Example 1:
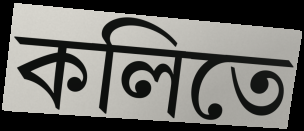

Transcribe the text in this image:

কলিতে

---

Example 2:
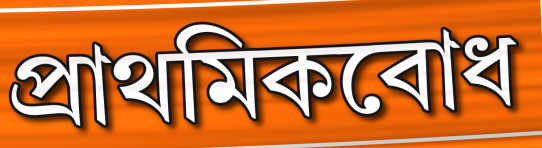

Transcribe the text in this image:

প্রাথমিকবোধ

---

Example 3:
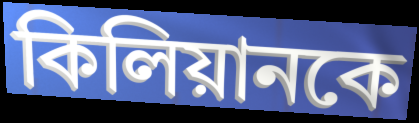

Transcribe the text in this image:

কিলিয়ানকে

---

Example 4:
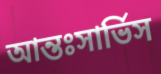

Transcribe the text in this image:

আন্তঃসার্ভিস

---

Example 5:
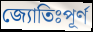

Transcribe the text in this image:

জ্যোতিঃপূর্ণ